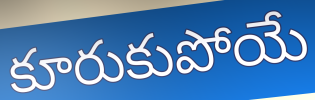
కూరుకుపోయే